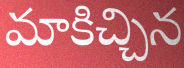
మాకిచ్చిన